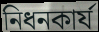
নিধনকার্য